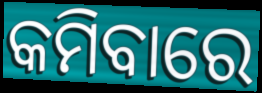
କମିବାରେ